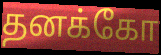
தனக்கோ